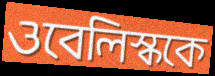
ওবেলিস্ককে